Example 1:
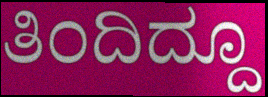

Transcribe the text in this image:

ತಿಂದಿದ್ದೂ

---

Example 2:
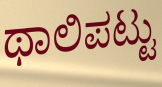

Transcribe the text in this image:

ಥಾಲಿಪಟ್ಟು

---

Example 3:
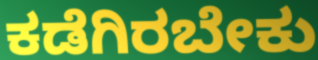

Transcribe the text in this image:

ಕಡೆಗಿರಬೇಕು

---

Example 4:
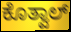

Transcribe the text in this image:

ಕೊತ್ವಾಲ್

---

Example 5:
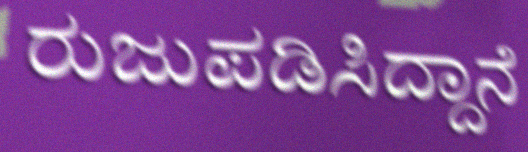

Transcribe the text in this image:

ರುಜುಪಡಿಸಿದ್ದಾನೆ